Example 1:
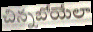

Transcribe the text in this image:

చిన్నబోయేలా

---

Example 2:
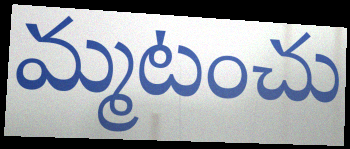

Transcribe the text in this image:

మ్మటంచు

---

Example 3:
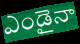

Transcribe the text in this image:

ఎండైనా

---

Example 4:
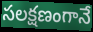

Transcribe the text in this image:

సలక్షణంగానే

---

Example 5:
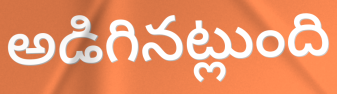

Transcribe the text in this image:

అడిగినట్లుంది